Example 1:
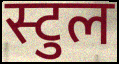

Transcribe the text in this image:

स्टुल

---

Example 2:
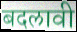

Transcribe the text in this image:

बदलावी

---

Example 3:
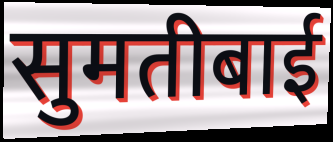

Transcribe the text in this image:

सुमतीबाई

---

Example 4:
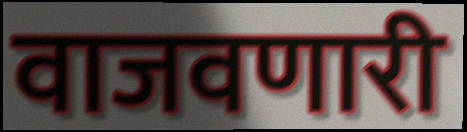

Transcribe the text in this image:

वाजवणारी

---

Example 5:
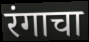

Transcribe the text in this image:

रंगाचा